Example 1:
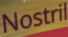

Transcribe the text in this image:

Nostril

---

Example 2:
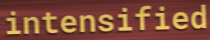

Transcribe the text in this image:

intensified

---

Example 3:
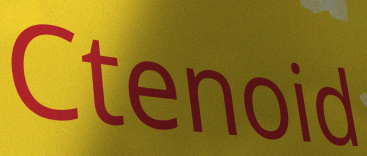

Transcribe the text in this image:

Ctenoid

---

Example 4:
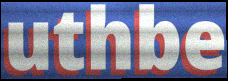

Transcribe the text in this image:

uthbe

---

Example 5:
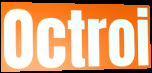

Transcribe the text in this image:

Octroi